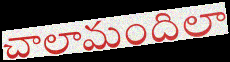
చాలామందిలా